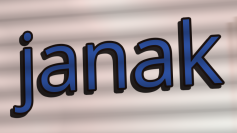
janak